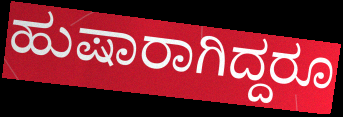
ಹುಷಾರಾಗಿದ್ದರೂ